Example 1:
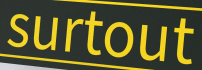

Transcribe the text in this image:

surtout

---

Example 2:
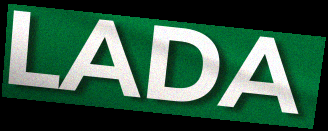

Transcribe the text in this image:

LADA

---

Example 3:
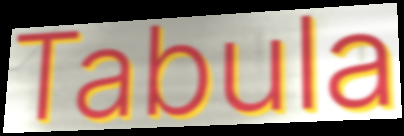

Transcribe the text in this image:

Tabula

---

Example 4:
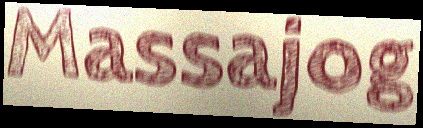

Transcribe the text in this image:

Massajog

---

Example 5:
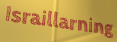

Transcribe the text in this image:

Israillarning